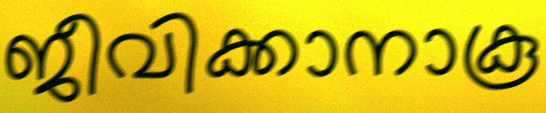
ജീവിക്കാനാകൂ